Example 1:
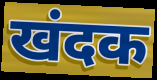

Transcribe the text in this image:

खंदक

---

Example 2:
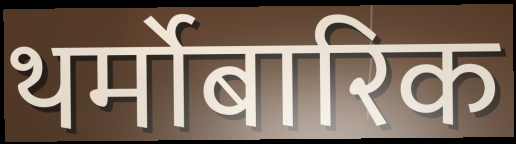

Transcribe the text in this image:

थर्मोबारिक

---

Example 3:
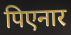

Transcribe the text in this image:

पिएनार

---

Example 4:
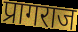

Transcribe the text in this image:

प्रागराज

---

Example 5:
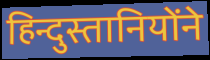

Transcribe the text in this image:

हिन्दुस्तानियोंने